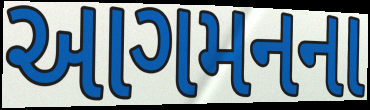
આગમનના